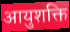
आयुशक्ति